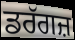
ਡਰੱਗਜ਼